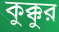
কুক্কুর